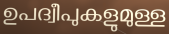
ഉപദ്വീപുകളുമുള്ള